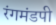
रंगमंडपी